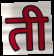
ती